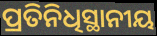
ପ୍ରତିନିଧିସ୍ଥାନୀୟ